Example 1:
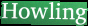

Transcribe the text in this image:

Howling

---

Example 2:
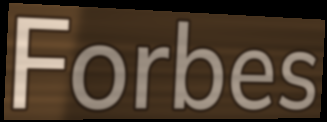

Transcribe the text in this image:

Forbes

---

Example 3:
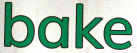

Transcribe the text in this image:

bake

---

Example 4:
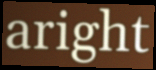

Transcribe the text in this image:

aright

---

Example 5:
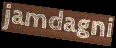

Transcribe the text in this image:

jamdagni